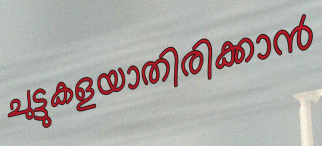
ചുട്ടുകളയാതിരിക്കാൻ